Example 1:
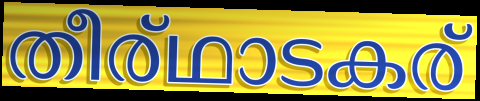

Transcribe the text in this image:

തീര്ഥാടകര്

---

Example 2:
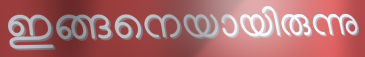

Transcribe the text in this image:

ഇങ്ങനെയായിരുന്നു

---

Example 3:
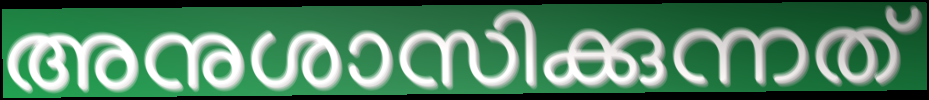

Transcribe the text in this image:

അനുശാസിക്കുന്നത്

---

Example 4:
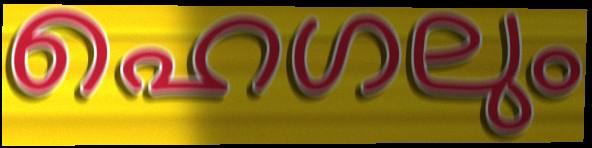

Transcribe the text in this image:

ഹെഗലും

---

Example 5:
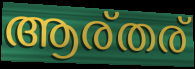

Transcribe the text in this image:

ആര്തര്